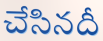
చేసినదీ